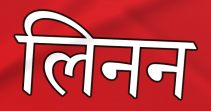
लिनन